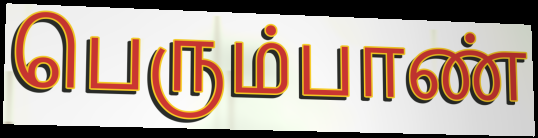
பெரும்பாண்